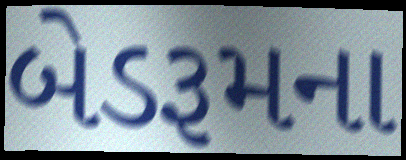
બેડરૂમના